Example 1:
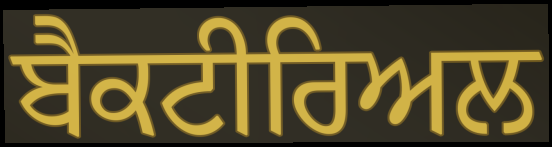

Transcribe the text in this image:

ਬੈਕਟੀਰਿਅਲ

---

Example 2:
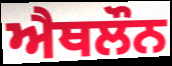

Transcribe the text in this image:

ਐਥਲੌਨ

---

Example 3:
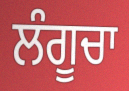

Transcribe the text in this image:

ਲੰਗੂਚਾ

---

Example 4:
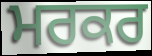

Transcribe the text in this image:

ਮਰਕਰ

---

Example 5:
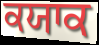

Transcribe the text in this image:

ਕਯਾਕ